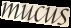
mucus